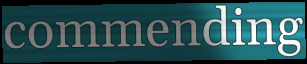
commending